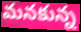
మనకున్న